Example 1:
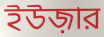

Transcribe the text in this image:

ইউজ়ার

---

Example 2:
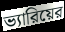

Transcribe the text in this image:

ভ্যারিয়ের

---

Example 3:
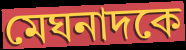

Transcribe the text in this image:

মেঘনাদকে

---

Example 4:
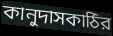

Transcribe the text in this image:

কানুদাসকাঠির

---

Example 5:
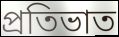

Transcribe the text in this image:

প্রতিভাত